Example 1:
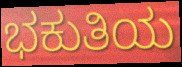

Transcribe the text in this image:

ಭಕುತಿಯ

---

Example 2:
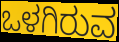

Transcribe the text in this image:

ಒಳಗಿರುವ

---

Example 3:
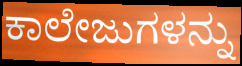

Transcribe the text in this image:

ಕಾಲೇಜುಗಳನ್ನು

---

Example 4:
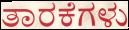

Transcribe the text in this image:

ತಾರಕೆಗಳು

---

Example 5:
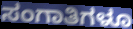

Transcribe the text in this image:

ಸಂಗಾತಿಗಳೂ